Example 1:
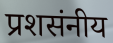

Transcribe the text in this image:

प्रशसंनीय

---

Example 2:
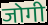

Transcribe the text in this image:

जोगी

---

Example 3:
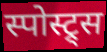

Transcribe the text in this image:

स्पोस्ट्र्स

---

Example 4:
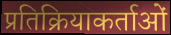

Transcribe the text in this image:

प्रतिक्रियाकर्ताओं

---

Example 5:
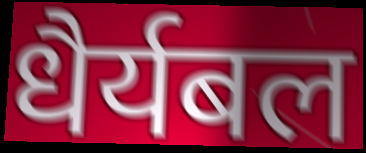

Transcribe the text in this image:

धैर्यबल